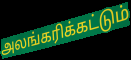
அலங்கரிக்கட்டும்